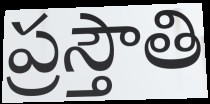
ప్రస్తౌతి